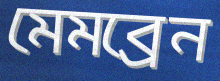
মেমব্রেন